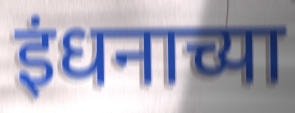
इंधनाच्या